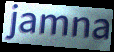
jamna